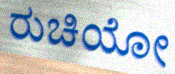
ರುಚಿಯೋ